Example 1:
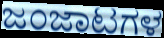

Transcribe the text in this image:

ಜಂಜಾಟಗಳ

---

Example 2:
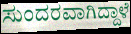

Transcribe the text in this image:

ಸುಂದರವಾಗಿದ್ದಾಳೆ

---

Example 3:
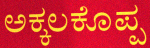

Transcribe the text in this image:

ಅಕ್ಕಲಕೊಪ್ಪ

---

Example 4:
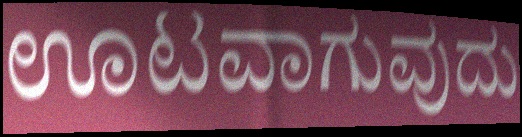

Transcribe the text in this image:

ಊಟವಾಗುವುದು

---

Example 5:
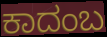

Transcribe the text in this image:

ಕಾದಂಬ